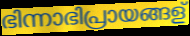
ഭിന്നാഭിപ്രായങ്ങള്